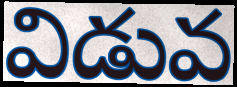
విడువ